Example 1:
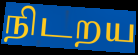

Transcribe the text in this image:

நிடறய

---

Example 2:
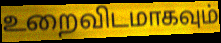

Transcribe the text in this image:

உறைவிடமாகவும்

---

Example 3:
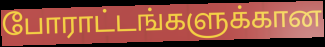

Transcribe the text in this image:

போராட்டங்களுக்கான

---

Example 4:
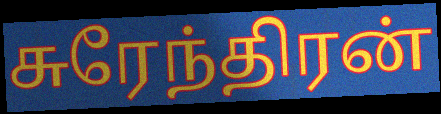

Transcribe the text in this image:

சுரேந்திரன்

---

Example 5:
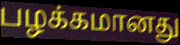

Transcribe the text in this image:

பழக்கமானது